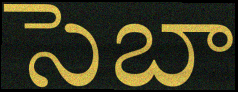
సెబా